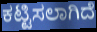
ಕಟ್ಟಿಸಲಾಗಿದೆ